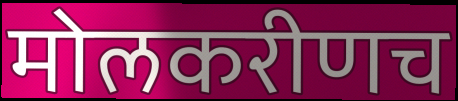
मोलकरीणच